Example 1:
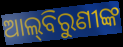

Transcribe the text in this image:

ଆଲ୍‌ବିରୁଣୀଙ୍କ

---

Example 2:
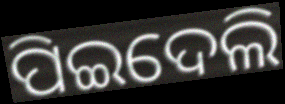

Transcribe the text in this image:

ପିଇଦେଲି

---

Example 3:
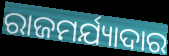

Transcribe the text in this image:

ରାଜମର୍ଯ୍ୟାଦାର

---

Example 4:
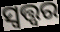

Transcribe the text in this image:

ସ୍ୱତ୍ତ୍ୱର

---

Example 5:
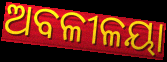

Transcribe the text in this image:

ଅବଳୀଳୟା